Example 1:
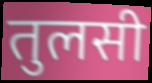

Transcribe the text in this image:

तुलसी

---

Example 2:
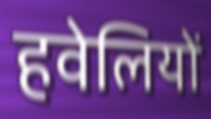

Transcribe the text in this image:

हवेलियों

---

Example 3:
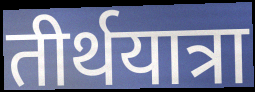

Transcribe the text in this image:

तीर्थयात्रा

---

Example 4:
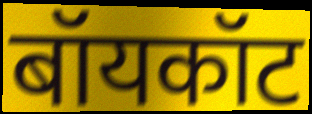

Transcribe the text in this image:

बॉयकॉट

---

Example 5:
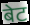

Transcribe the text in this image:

बेट